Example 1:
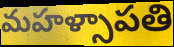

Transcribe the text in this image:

మహళ్సాపతి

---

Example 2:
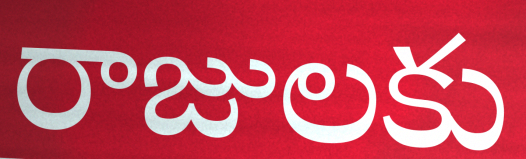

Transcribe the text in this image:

రాజులకు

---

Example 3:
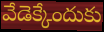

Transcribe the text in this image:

వేడెక్కేందుకు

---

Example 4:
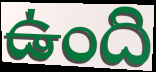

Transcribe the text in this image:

ఉంది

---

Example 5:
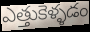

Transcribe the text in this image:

ఎత్తుకెళ్ళడం